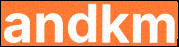
andkm